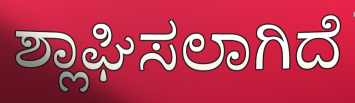
ಶ್ಲಾಘಿಸಲಾಗಿದೆ